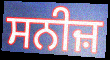
ਸਨੀਜ਼